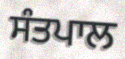
ਸੰਤਪਾਲ